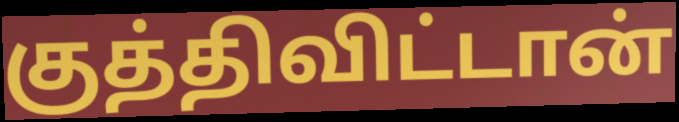
குத்திவிட்டான்